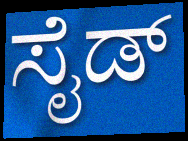
ಸೈಡ್